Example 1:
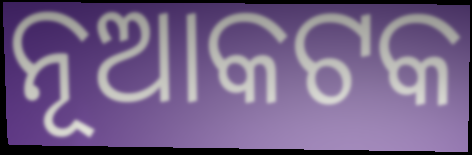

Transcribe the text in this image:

ନୂଆକଟକ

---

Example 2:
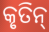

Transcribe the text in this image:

କୃତିନ୍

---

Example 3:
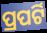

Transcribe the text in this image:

ପ୍ରପର୍ଟି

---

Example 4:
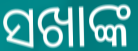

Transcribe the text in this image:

ସଖାଙ୍କ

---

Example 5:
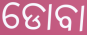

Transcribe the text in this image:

ଡୋବା